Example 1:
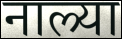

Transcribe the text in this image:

नाल्या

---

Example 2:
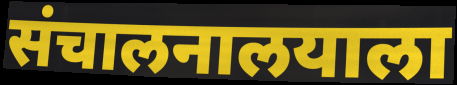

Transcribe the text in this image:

संचालनालयाला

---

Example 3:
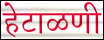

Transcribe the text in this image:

हेटाळणी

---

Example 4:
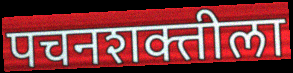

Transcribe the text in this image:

पचनशक्तीला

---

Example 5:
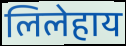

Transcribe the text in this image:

लिलेहाय